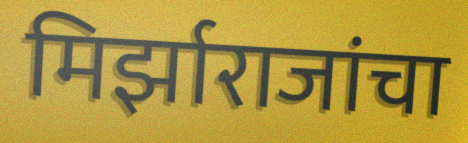
मिर्झाराजांचा